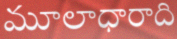
మూలాధారాది